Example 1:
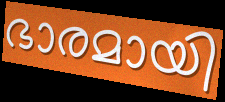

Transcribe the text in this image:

ഭാരമായി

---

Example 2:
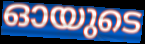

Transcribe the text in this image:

ഓയുടെ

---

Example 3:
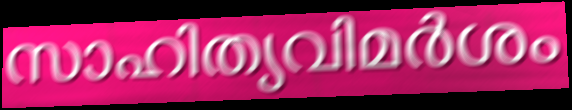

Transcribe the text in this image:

സാഹിത്യവിമർശം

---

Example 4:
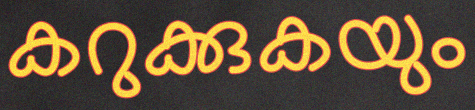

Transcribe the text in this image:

കറുക്കുകയും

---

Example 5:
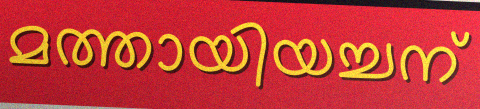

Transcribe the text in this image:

മത്തായിയച്ചന്